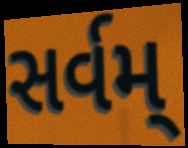
સર્વમ્